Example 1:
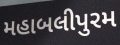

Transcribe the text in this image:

મહાબલીપુરમ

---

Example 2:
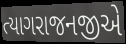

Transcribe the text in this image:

ત્યાગરાજનજીએ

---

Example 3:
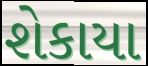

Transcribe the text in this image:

શેકાયા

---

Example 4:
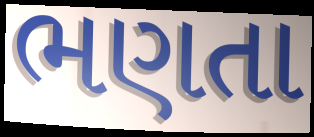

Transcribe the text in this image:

ભણતા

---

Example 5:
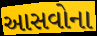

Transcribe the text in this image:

આસવોના